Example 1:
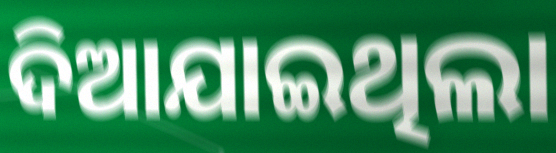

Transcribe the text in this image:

ଦିଆଯାଇଥିଲା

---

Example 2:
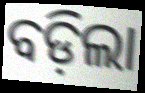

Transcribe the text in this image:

ବଡ଼ିଲା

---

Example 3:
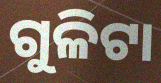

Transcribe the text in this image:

ଗୁଳିଟା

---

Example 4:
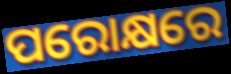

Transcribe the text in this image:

ପରୋକ୍ଷରେ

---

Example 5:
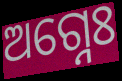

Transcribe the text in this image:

ଅଗ୍ନେଃ